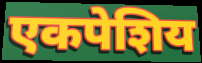
एकपेशिय